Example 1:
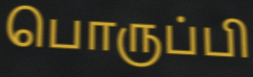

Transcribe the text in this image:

பொருப்பி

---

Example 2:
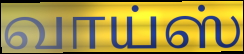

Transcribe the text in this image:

வாய்ஸ்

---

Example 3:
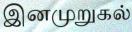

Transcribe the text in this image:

இனமுறுகல்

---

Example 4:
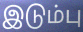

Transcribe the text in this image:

இடும்பு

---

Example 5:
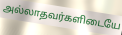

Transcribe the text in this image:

அல்லாதவர்களிடையே